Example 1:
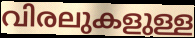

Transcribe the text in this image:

വിരലുകളുള്ള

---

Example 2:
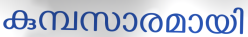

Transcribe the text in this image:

കുമ്പസാരമായി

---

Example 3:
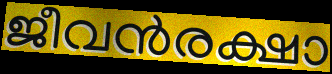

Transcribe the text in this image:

ജീവൻരക്ഷാ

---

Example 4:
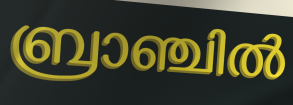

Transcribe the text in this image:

ബ്രാഞ്ചിൽ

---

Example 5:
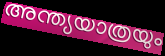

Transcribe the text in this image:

അന്ത്യയാത്രയും